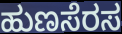
ಹುಣಸೆರಸ